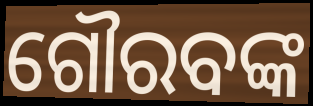
ଗୌରବଙ୍କ